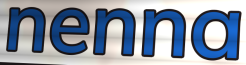
nenna